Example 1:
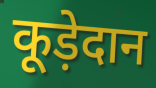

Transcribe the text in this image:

कूड़ेदान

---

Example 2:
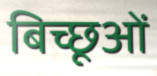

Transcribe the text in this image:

बिच्छूओं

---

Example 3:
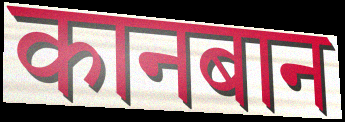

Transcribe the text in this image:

कानबान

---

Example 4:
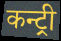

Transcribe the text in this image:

कन्ट्री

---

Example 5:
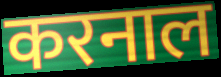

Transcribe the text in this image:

करनाल